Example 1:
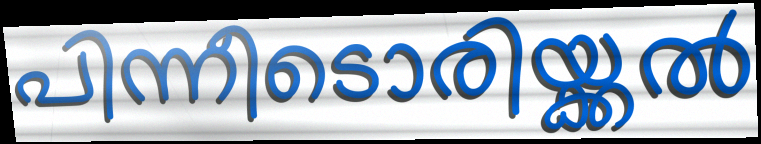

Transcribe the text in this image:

പിന്നീടൊരിയ്ക്കൽ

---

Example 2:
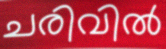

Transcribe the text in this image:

ചരിവിൽ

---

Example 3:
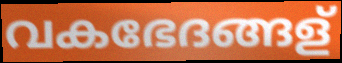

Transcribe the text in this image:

വകഭേദങ്ങള്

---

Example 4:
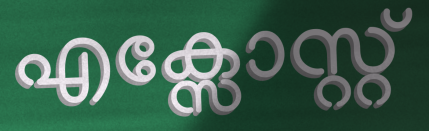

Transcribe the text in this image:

എക്സോസ്റ്റ്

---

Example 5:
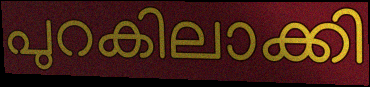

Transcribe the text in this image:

പുറകിലാക്കി